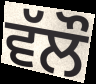
ਵੱਲੌ